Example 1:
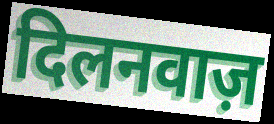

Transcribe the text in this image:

दिलनवाज़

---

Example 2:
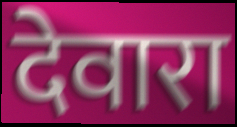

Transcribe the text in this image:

देवारा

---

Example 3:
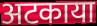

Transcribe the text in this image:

अटकाया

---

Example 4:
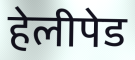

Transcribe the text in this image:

हेलीपेड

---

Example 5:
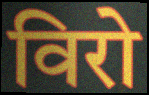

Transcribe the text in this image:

विरो